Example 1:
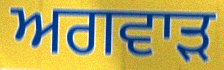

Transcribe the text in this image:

ਅਗਵਾੜ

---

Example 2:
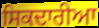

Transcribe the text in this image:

ਸਿਕਦਾਰੀਆ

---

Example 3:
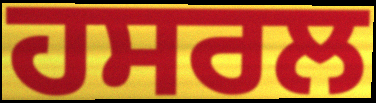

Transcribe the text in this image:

ਹਸਰਲ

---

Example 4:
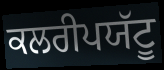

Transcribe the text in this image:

ਕਲਰੀਪਯੱਟੂ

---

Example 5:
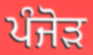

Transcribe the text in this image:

ਪੰਜੋੜ